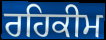
ਰਹਿਕੀਮ